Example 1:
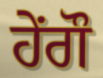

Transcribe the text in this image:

ਹੇਂਗੌ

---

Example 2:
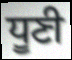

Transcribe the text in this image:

ਧੂਣੀ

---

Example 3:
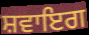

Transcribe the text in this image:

ਸ਼ਵਾਇਗ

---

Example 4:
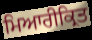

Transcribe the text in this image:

ਮਿਆਰੀਕ੍ਰਿਤ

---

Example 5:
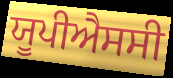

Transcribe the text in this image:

ਯੂਪੀਐਸਸੀ